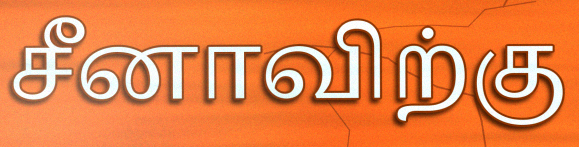
சீனாவிற்கு